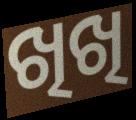
ଖିଖି